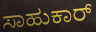
ಸಾಹುಕಾರ್